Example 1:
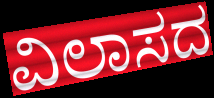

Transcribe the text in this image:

ವಿಲಾಸದ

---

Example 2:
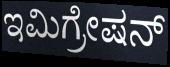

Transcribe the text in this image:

ಇಮಿಗ್ರೇಷನ್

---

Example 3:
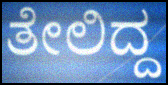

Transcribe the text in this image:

ತೇಲಿದ್ದ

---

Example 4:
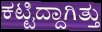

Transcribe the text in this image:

ಕಟ್ಟಿದ್ದಾಗಿತ್ತು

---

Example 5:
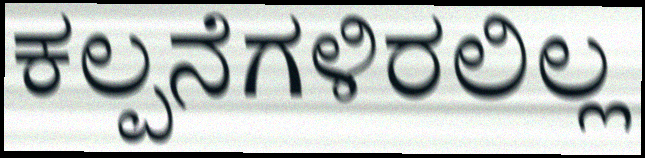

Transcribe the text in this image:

ಕಲ್ಪನೆಗಳಿರಲಿಲ್ಲ